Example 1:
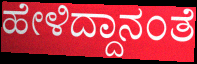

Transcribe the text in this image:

ಹೇಳಿದ್ದಾನಂತೆ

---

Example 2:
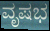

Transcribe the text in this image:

ವೃಷಭ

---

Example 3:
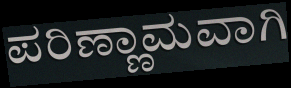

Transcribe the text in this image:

ಪರಿಣ್ಣಾಮವಾಗಿ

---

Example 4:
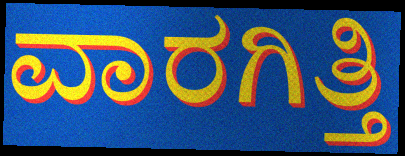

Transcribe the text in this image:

ವಾರಗಿತ್ತಿ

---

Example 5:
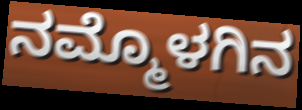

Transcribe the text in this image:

ನಮ್ಮೊಳಗಿನ